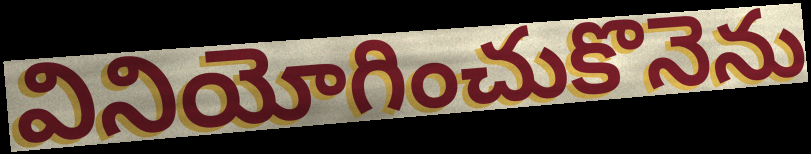
వినియోగించుకొనెను